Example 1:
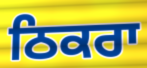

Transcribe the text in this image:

ਠਿਕਰਾ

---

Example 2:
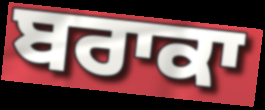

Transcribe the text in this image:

ਬਰਾਕਾ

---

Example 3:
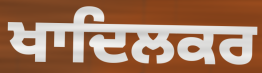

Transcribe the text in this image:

ਖਾਦਿਲਕਰ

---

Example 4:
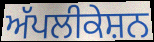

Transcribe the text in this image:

ਅੱਪਲੀਕੇਸ਼ਨ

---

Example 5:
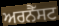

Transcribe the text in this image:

ਅਰਨੈੱਸਟ